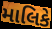
માલિકે